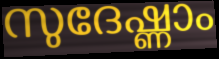
സുദേഷ്ണാം